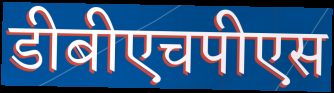
डीबीएचपीएस